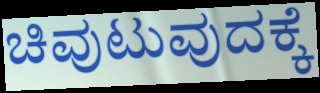
ಚಿವುಟುವುದಕ್ಕೆ